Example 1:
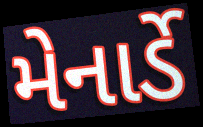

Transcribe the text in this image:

મેનાર્ડે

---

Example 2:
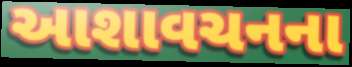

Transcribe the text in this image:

આશાવચનના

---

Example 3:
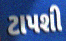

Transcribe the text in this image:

ટાપશી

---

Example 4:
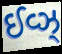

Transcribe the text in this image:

ઈવ્ઝ્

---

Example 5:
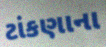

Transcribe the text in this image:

ટાંકણાના